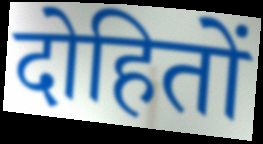
दोहितों